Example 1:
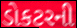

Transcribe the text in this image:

ડોકટરની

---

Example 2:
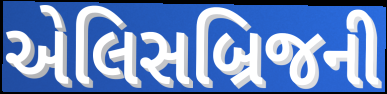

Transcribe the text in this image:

એલિસબ્રિજની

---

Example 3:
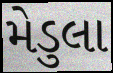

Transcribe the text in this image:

મેડુલા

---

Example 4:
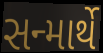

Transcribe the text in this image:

સન્માર્થે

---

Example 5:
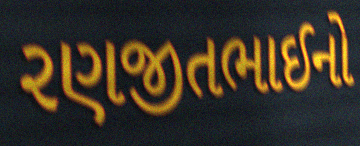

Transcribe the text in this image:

રણજીતભાઈનો